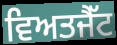
ਵਿਅਤਜੈੱਟ